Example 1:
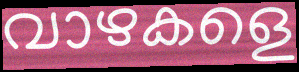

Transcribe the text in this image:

വാഴകളെ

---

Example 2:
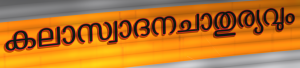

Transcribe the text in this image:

കലാസ്വാദനചാതുര്യവും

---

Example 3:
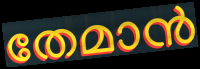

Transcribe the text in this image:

തേമാൻ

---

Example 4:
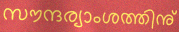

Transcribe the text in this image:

സൗന്ദര്യാംശത്തിനു്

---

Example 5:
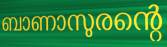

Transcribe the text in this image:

ബാണാസുരന്റെ